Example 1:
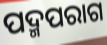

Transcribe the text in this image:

ପଦ୍ମପରାଗ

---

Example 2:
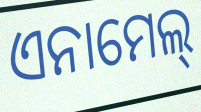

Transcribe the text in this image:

ଏନାମେଲ୍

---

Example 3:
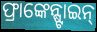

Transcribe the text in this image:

ଫ୍ରାଙ୍କେନ୍ଷ୍ଟାଇନ୍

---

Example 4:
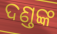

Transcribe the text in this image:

ଦଣ୍ଡଙ୍କ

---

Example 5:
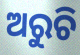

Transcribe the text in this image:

ଅରୁଚି